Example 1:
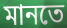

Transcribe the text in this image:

মানতে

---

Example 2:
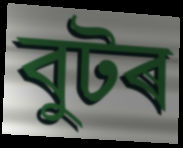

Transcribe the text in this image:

বুটৰ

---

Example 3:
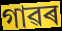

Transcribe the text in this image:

গাৱৰ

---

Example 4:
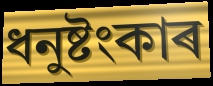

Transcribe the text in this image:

ধনুষ্টংকাৰ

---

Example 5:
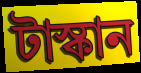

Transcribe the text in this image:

টাস্কান